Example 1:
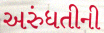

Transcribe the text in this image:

અરુંધતીની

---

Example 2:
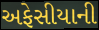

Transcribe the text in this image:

અફેસીયાની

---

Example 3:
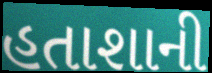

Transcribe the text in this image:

હતાશાની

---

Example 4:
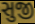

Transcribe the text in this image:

સુજી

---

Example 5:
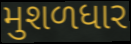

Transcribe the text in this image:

મુશળધાર